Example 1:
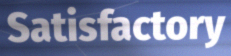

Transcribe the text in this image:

Satisfactory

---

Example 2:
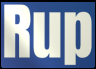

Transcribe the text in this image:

Rup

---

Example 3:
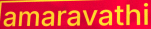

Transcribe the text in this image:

amaravathi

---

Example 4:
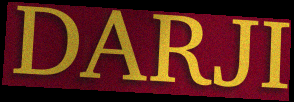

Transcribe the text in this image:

DARJI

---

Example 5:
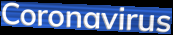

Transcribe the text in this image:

Coronavirus